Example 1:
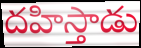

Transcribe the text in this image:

దహిస్తాడు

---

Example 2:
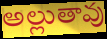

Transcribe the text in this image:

అల్లుతావు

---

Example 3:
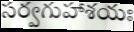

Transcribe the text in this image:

సర్వగుహాశయః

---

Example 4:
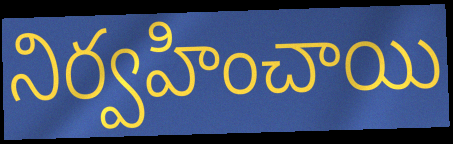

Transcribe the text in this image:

నిర్వహించాయి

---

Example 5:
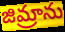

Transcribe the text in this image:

జిమ్రాను